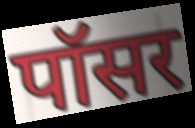
पॉसर